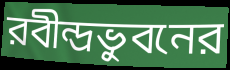
রবীন্দ্রভুবনের